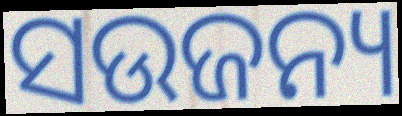
ସଉଜନ୍ୟ